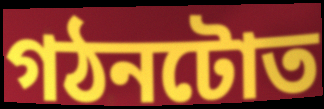
গঠনটোত